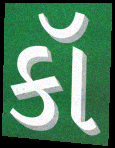
કૉ